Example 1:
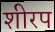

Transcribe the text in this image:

शीरप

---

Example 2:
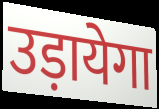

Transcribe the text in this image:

उड़ायेगा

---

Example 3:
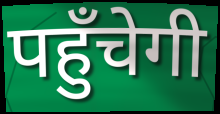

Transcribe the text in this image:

पहुँचेगी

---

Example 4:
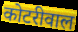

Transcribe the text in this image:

कोटरीवाल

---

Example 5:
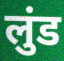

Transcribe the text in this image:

लुंड